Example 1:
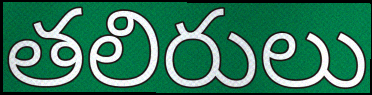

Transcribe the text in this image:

తలిరులు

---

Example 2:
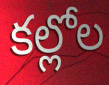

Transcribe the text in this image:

కల్లోల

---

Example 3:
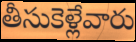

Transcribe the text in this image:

తీసుకెళ్లేవారు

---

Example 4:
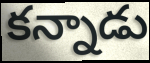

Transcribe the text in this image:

కన్నాడు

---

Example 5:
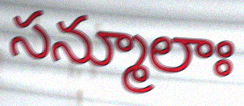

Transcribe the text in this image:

సన్మూలాః